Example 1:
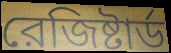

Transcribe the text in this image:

রেজিষ্টার্ড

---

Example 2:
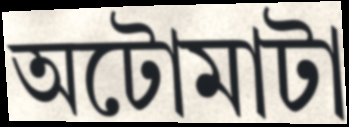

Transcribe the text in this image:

অটোমাটা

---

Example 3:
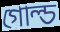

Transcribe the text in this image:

গোল্ড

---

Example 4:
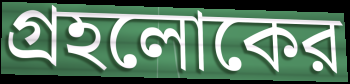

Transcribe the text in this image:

গ্রহলোকের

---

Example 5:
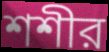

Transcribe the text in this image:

শশীর